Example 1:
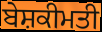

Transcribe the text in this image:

ਬੇਸ਼ਕੀਮਤੀ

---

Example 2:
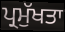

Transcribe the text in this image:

ਪ੍ਰਮੁੱਖਤਾ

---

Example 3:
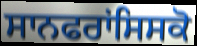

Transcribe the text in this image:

ਸਾਨਫਰਾਂਸਿਸਕੋ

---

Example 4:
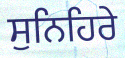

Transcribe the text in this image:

ਸੁਨਿਹਿਰੇ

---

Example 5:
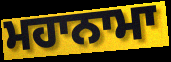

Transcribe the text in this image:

ਮਹਾਨਾਮਾ